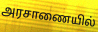
அரசாணையில்